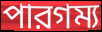
পারগম্য